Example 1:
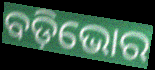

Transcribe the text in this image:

ବଡ଼ିଭୋର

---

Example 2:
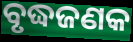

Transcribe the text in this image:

ବୃଦ୍ଧଜଣକ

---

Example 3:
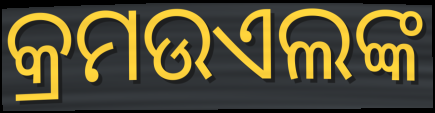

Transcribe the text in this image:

କ୍ରମଉଏଲଙ୍କ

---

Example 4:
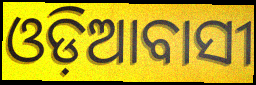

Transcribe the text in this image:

ଓଡ଼ିଆବାସୀ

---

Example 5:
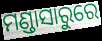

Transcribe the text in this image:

ମଣ୍ଡାସାରୁରେ